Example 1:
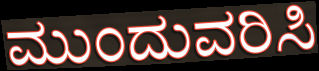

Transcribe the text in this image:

ಮುಂದುವರಿಸಿ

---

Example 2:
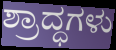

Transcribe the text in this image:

ಶ್ರಾದ್ಧಗಳು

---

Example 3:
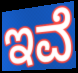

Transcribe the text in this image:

ಇವೆ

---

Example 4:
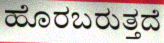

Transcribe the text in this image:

ಹೊರಬರುತ್ತದೆ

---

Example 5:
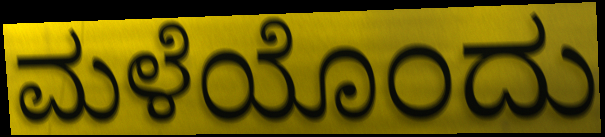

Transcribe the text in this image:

ಮಳೆಯೊಂದು